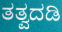
ತತ್ವದಡಿ